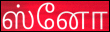
ஸ்னோ